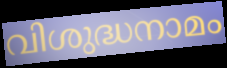
വിശുദ്ധനാമം